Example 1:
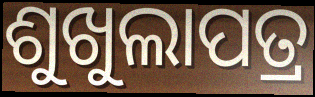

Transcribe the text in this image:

ଶୁଖୁଲାପତ୍ର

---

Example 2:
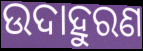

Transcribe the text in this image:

ଉଦାହୁରଣ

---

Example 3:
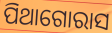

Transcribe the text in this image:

ପିଥାଗୋରାସ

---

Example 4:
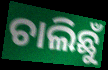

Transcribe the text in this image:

ଚାଲିଛୁଁ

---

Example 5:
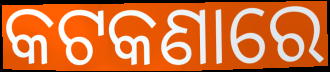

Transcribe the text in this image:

କଟକଣାରେ